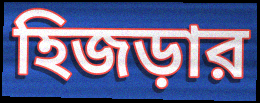
হিজড়ার